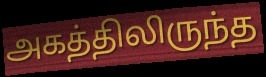
அகத்திலிருந்த